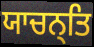
ਯਾਚਨ੍ਤਿ